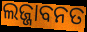
ଲଜ୍ଜାବନତ